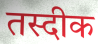
तस्दीक